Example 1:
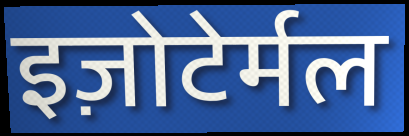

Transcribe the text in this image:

इज़ोटेर्मल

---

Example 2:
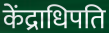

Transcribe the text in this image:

केंद्राधिपति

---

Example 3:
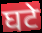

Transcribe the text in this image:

घटे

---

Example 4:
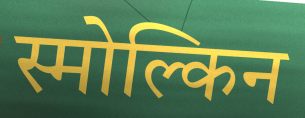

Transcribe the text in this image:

स्मोल्किन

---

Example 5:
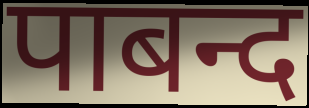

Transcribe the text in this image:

पाबन्द